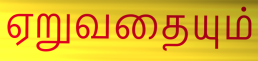
ஏறுவதையும்